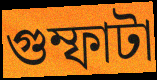
গুম্ফাটা